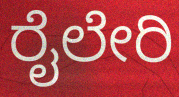
ರೈಲೇರಿ